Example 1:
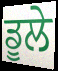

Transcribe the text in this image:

ਡੂਲੇ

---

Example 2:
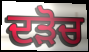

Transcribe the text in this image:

ਦੜੋਚ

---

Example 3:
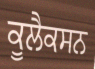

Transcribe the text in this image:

ਕੂਲੈਕਸਨ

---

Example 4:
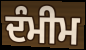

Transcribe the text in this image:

ਦੰਮੀਮ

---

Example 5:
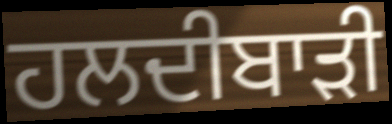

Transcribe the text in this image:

ਹਲਦੀਬਾੜੀ